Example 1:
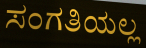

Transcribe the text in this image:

ಸಂಗತಿಯಲ್ಲ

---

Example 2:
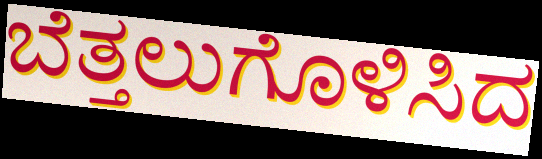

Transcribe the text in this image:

ಬೆತ್ತಲುಗೊಳಿಸಿದ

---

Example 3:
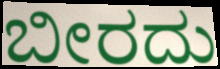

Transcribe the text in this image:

ಬೀರದು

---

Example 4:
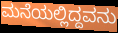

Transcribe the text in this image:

ಮನೆಯಲ್ಲಿದ್ದವನು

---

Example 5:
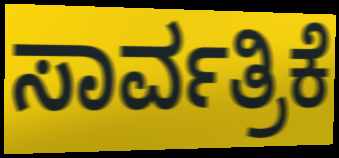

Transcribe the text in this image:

ಸಾರ್ವತ್ರಿಕೆ